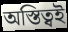
অস্তিত্বই